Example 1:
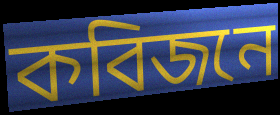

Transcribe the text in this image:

কবিজনে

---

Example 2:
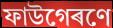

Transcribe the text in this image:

ফাউগেৰণে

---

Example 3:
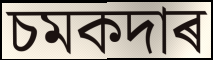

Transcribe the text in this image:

চমকদাৰ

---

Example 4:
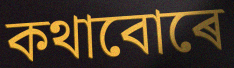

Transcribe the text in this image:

কথাবোৰে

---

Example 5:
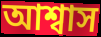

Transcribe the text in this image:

আশ্বাস